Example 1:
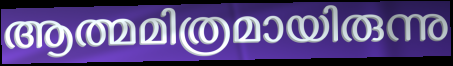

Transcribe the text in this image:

ആത്മമിത്രമായിരുന്നു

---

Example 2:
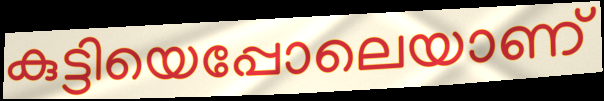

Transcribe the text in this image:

കുട്ടിയെപ്പോലെയാണ്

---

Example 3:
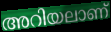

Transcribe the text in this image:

അറിയലാണ്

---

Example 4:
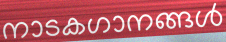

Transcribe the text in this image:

നാടകഗാനങ്ങൾ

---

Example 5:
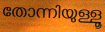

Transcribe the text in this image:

തോന്നിയുള്ളൂ